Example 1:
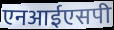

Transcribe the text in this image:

एनआईएसपी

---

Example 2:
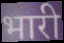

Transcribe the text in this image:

भारी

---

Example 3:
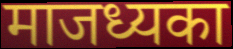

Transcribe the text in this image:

माजध्यका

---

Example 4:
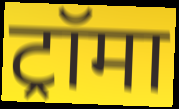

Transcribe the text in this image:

ट्रॉमा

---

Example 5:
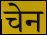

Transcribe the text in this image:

चेन